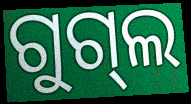
ଗୁଗ୍‌ଲ